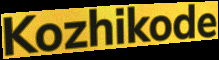
Kozhikode